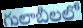
గులాబీలలో